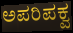
ಅಪರಿಪಕ್ವ